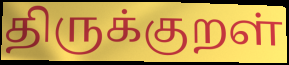
திருக்குறள்